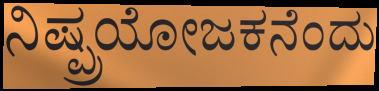
ನಿಷ್ಪ್ರಯೋಜಕನೆಂದು